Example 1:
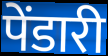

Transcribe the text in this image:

पेंडारी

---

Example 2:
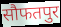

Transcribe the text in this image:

सौफतपुर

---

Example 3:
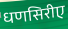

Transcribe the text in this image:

धणसिरीए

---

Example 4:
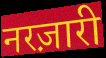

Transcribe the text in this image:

नरज़ारी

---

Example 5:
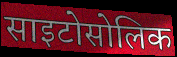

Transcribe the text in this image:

साइटोसोलिक